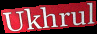
Ukhrul